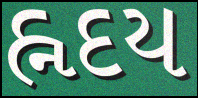
હ્નદય